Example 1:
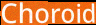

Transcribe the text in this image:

Choroid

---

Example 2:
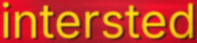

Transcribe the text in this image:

intersted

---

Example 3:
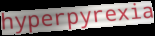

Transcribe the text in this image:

hyperpyrexia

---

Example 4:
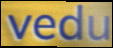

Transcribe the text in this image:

vedu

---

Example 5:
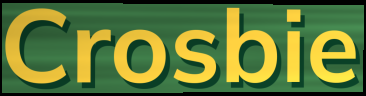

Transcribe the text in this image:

Crosbie